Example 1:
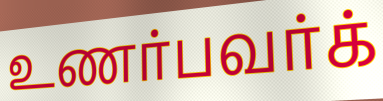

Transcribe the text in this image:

உணர்பவர்க்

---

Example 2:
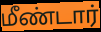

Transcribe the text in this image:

மீண்டார்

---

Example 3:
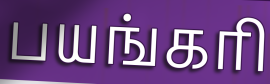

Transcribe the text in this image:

பயங்கரி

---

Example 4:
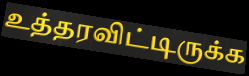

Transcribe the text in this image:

உத்தரவிட்டிருக்க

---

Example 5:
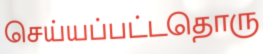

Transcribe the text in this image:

செய்யப்பட்டதொரு